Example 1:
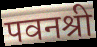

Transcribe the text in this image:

पवनश्री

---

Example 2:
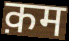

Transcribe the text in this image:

क़म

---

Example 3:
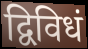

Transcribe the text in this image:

द्विविधं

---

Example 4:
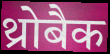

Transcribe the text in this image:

थ्रोबैक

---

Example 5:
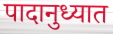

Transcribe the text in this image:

पादानुध्यात